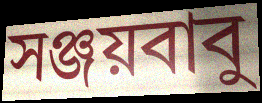
সঞ্জয়বাবু